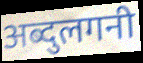
अब्दुलगनी